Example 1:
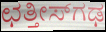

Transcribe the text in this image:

ಛತ್ತೀಸ್‌ಗಢ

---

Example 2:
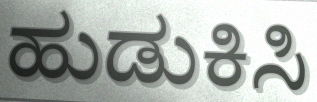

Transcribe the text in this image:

ಹುಡುಕಿಸಿ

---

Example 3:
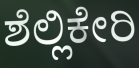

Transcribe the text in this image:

ಶೆಲ್ಲಿಕೇರಿ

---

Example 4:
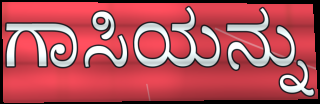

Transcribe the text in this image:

ಗಾಸಿಯನ್ನು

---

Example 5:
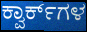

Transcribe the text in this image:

ಕ್ವಾರ್ಕ್‌ಗಳ